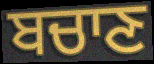
ਬਚਾਣ